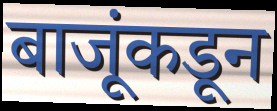
बाजूंकडून